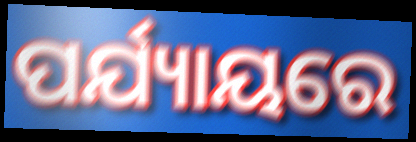
ପର୍ଯ୍ୟାୟରେ